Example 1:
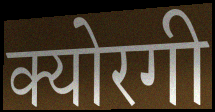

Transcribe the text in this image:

क्योरगी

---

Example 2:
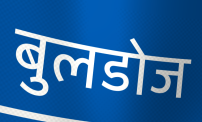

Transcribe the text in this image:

बुलडोज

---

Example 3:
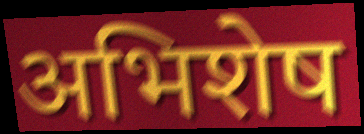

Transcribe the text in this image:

अभिशेष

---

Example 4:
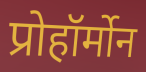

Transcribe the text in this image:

प्रोहॉर्मोन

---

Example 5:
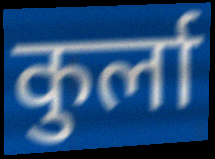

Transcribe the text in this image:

कुर्ला